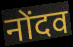
नोंदव